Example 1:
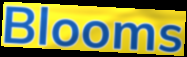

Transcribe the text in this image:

Blooms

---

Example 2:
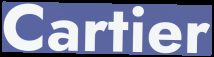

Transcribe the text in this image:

Cartier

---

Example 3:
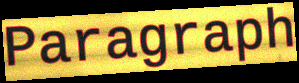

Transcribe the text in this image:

Paragraph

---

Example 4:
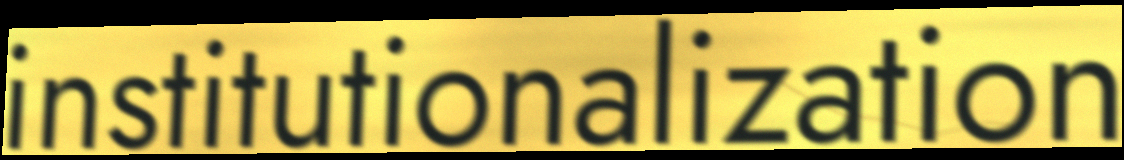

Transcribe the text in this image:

institutionalization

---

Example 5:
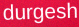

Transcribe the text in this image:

durgesh